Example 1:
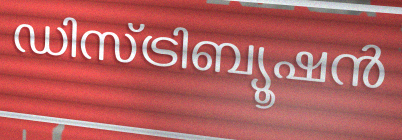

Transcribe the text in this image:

ഡിസ്ട്രിബ്യൂഷൻ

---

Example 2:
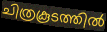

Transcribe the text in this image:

ചിത്രകൂടത്തിൽ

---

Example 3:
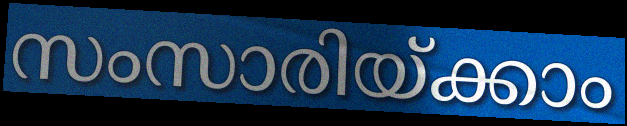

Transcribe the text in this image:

സംസാരിയ്ക്കാം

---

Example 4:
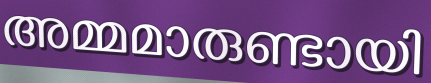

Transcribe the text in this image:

അമ്മമാരുണ്ടായി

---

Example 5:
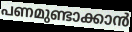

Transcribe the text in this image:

പണമുണ്ടാക്കാൻ